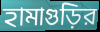
হামাগুড়ির